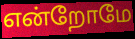
என்றோமே